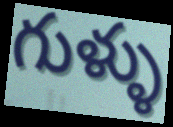
గుళ్ళు